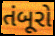
તંબૂરો